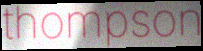
thompson